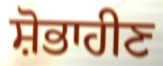
ਸ਼ੋਭਾਹੀਣ